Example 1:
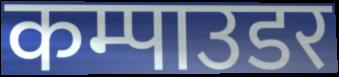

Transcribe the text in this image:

कम्पाउडर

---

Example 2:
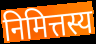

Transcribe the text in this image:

निमित्तस्य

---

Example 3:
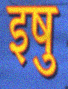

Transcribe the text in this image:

इषु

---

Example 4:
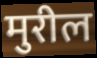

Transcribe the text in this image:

मुरील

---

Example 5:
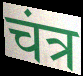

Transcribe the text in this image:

चंत्र